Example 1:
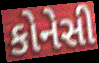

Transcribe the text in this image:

કોનેસી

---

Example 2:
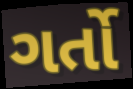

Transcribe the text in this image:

ગર્તો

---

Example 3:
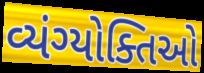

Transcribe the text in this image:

વ્યંગ્યોક્તિઓ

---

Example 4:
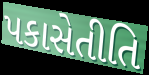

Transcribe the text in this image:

પકાસેતીતિ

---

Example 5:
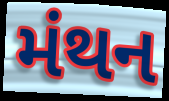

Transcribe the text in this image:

મંથન